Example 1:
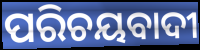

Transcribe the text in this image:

ପରିଚୟବାଦୀ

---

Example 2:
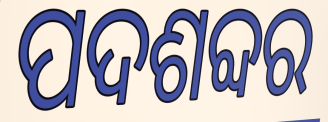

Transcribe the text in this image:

ପଦଶବ୍ଦର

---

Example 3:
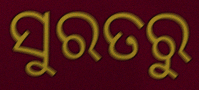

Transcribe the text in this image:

ସୁରତରୁ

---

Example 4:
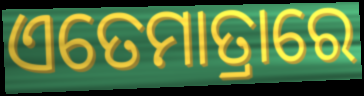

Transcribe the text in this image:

ଏତେମାତ୍ରାରେ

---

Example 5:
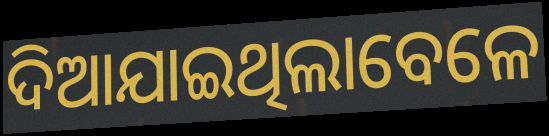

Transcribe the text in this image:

ଦିଆଯାଇଥିଲାବେଳେ